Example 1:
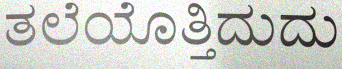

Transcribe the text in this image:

ತಲೆಯೊತ್ತಿದುದು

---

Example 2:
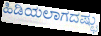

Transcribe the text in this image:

ಹಿಡಿಯಲಾಗದಷ್ಟು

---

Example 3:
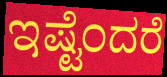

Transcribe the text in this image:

ಇಷ್ಟೆಂದರೆ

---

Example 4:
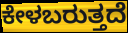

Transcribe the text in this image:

ಕೇಳಬರುತ್ತದೆ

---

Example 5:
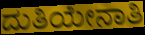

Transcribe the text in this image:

ದುತಿಯೇನಾತಿ